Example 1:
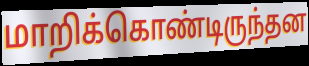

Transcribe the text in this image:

மாறிக்கொண்டிருந்தன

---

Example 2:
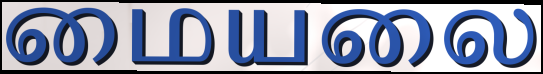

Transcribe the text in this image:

மையலை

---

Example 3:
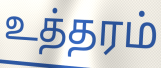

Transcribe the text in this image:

உத்தரம்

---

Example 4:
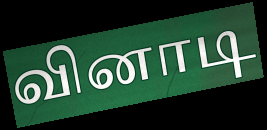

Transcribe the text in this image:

வினாடி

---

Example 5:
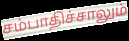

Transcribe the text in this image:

சம்பாதிச்சாலும்